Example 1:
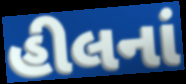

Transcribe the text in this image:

હીલનાં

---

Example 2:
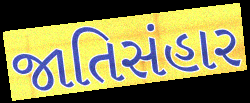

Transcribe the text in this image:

જાતિસંહાર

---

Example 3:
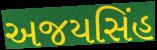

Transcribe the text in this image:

અજયસિંહ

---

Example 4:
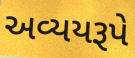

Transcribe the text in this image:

અવ્યયરૂપે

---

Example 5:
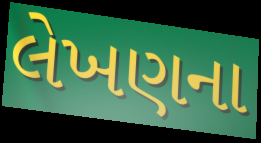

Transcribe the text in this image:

લેખણના